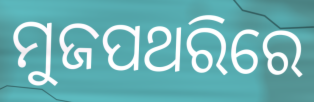
ମୁଜପଥରିରେ